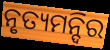
ନୃତ୍ୟମନ୍ଦିର